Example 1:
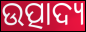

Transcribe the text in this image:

ଉତ୍ପାଦ୍ୟ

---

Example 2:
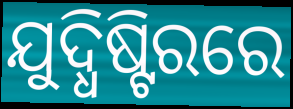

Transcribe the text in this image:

ଯୁଦ୍ଧିଷ୍ଟିରରେ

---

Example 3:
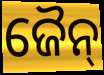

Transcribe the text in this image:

ଜୈନ୍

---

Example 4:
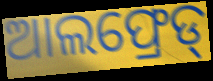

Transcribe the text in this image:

ଆଲଫ୍ରେଡ୍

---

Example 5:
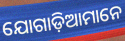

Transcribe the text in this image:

ଯୋଗାଡ଼ିଆମାନେ